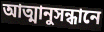
আত্মানুসন্ধানে